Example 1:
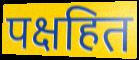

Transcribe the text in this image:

पक्षहित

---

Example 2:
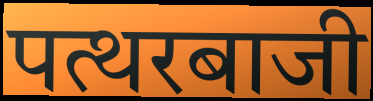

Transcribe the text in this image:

पत्थरबाजी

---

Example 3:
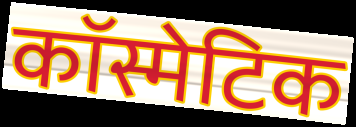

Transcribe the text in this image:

कॉस्मेटिक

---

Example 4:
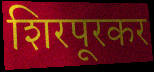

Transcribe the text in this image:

शिरपूरकर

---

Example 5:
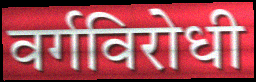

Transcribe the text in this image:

वर्गविरोधी